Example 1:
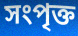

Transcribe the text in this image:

সংপৃক্ত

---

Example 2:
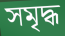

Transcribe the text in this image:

সমৃদ্ধ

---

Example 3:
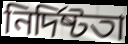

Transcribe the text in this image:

নিৰ্দিষ্টতা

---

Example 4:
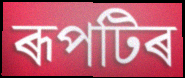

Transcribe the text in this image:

ৰূপটিৰ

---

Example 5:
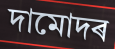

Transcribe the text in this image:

দামোদৰ